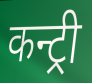
कन्ट्री